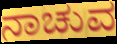
ನಾಚುವ